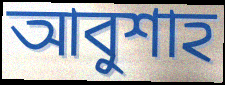
আবুশাহ